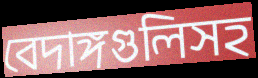
বেদাঙ্গগুলিসহ